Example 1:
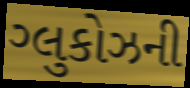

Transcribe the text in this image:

ગ્લુકોઝની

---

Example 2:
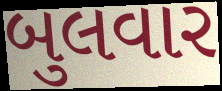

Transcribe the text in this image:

બુલવાર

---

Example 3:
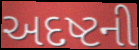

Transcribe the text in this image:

અદષ્ટની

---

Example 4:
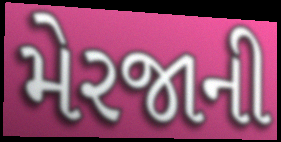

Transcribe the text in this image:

મેરજાની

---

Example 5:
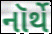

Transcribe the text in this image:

નૉર્થે